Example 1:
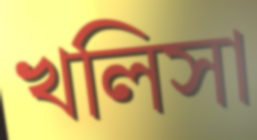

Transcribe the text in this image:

খলিসা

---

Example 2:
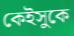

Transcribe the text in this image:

কেইসুকে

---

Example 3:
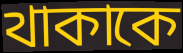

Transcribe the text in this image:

থাকাকে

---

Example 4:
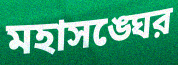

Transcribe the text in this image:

মহাসঙ্ঘের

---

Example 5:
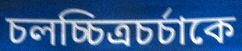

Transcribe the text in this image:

চলচ্চিত্রচর্চাকে